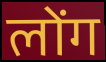
लोंग